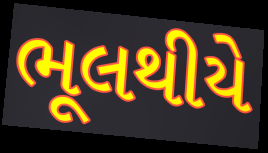
ભૂલથીયે